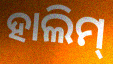
ହାଲିମ୍